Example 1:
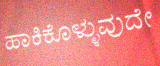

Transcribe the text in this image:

ಹಾಕಿಕೊಳ್ಳುವುದೇ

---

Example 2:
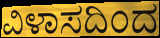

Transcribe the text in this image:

ವಿಳಾಸದಿಂದ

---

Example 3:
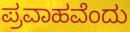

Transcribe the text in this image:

ಪ್ರವಾಹವೆಂದು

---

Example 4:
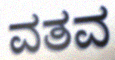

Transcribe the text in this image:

ವತವ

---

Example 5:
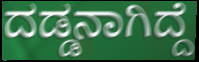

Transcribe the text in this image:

ದಡ್ಡನಾಗಿದ್ದೆ